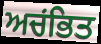
ਅਚਂਭਿਤ